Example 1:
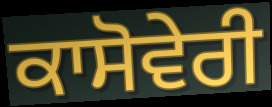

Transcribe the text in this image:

ਕਾਸੋਵੇਰੀ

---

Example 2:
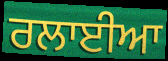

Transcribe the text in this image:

ਰਲਾਈਆ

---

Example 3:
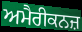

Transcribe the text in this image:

ਅਮੈਰੀਕਨਜ਼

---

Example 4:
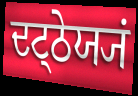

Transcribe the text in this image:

ਦਟ੍ਠੇਯ੍ਯਂ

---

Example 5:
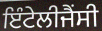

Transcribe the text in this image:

ਇੰਟੇਲੀਜੈਂਸੀ